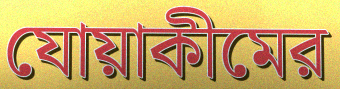
যোয়াকীমের